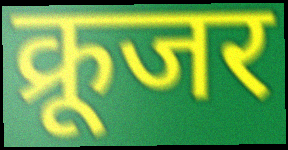
क्रूजर